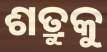
ଶତ୍ରୁକୁ